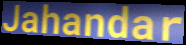
Jahandar